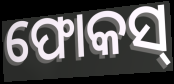
ଫୋକସ୍